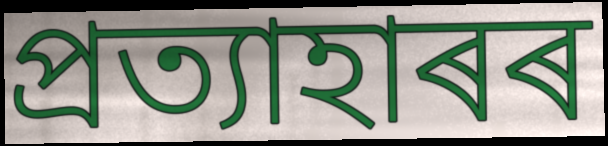
প্ৰত্যাহাৰৰ